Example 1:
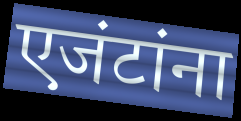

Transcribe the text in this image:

एजंटांना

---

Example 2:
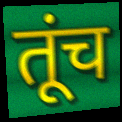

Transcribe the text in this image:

तूंच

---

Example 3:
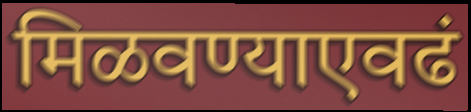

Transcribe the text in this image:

मिळवण्याएवढं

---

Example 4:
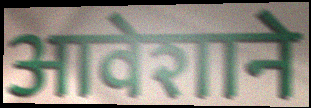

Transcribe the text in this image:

आवेशाने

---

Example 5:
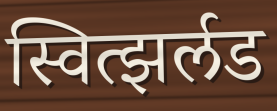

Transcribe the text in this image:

स्वित्झर्लड